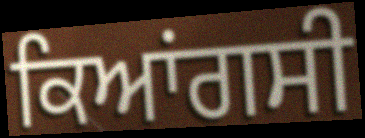
ਕਿਆਂਗਸੀ